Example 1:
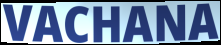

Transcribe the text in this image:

VACHANA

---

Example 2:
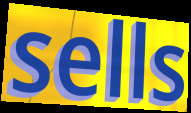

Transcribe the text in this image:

sells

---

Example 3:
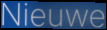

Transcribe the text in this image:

Nieuwe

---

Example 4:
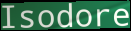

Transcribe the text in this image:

Isodore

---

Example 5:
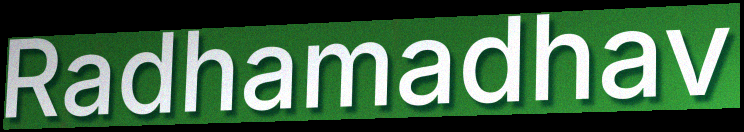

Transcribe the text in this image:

Radhamadhav